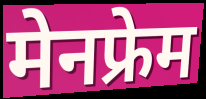
मेनफ्रेम